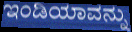
ಇಂಡಿಯಾವನ್ನು